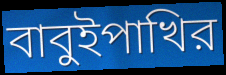
বাবুইপাখির